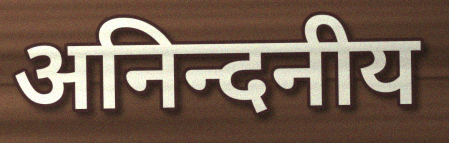
अनिन्दनीय